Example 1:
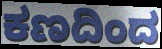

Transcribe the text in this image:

ಕಣದಿಂದ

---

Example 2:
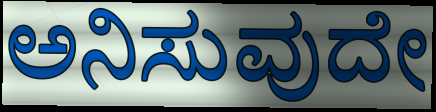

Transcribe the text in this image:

ಅನಿಸುವುದೇ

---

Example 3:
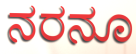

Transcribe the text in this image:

ನರನೂ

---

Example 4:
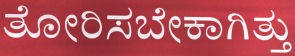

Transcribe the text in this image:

ತೋರಿಸಬೇಕಾಗಿತ್ತು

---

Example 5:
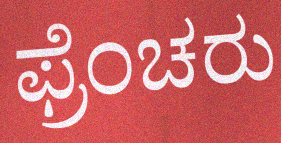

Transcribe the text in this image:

ಫ್ರೆಂಚರು